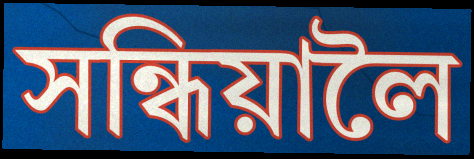
সন্ধিয়ালৈ